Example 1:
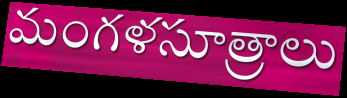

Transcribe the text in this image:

మంగళసూత్రాలు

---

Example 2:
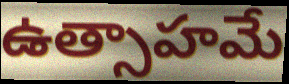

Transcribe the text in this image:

ఉత్సాహమే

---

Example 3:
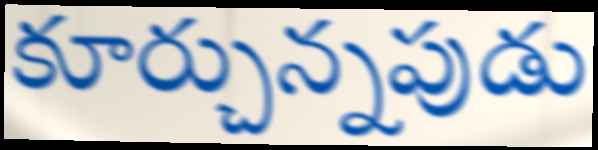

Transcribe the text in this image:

కూర్చున్నపుడు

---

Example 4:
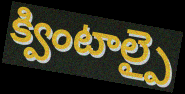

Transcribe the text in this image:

క్వింటాల్పై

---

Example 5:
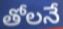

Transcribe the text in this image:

తోలనే